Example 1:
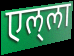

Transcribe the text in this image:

एल्ला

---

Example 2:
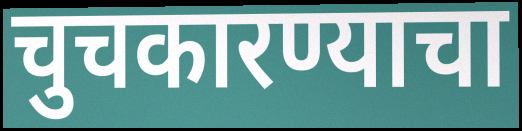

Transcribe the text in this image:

चुचकारण्याचा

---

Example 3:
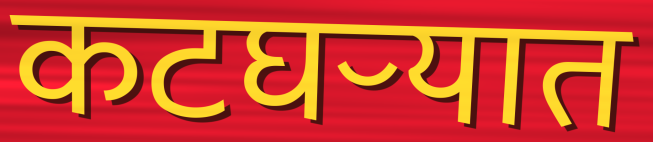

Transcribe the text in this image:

कटघऱ्यात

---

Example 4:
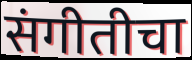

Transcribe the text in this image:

संगीतीचा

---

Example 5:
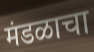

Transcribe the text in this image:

मंडळाचा